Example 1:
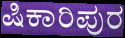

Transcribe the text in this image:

ಷಿಕಾರಿಪುರ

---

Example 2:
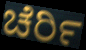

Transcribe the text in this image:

ಚೆರ್ರಿ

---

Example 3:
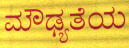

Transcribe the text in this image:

ಮೌಢ್ಯತೆಯ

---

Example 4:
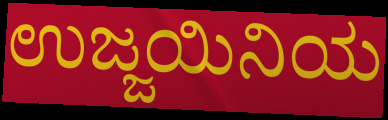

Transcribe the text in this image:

ಉಜ್ಜಯಿನಿಯ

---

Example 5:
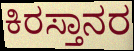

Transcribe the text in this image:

ಕಿರಸ್ತಾನರ